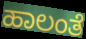
ಹಾಲಂತೆ